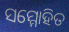
ସମ୍ମୋହିତ